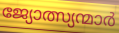
ജ്യോത്സ്യന്മാർ